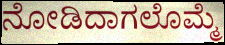
ನೋಡಿದಾಗಲೊಮ್ಮೆ